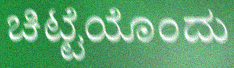
ಚಿಟ್ಟೆಯೊಂದು